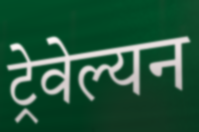
ट्रेवेल्यन